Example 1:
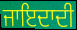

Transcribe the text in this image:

ਜਾਇਦਾਦੀ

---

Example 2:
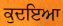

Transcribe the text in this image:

ਕੁਦਇਆ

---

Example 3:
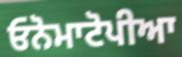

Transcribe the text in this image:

ਓਨੋਮਾਟੋਪੀਆ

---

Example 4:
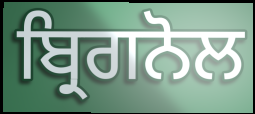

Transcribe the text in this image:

ਬ੍ਰਿਗਨੋਲ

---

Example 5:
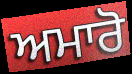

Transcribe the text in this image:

ਅਮਾਰੋ